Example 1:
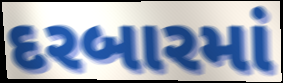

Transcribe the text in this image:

દરબારમાં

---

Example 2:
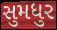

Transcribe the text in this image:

સુમધુર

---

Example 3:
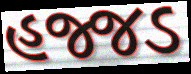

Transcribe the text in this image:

હજ્જડ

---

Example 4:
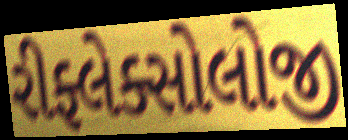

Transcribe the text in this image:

રીફ્લેક્સોલોજી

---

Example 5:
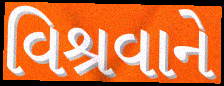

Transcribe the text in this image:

વિશ્રવાને